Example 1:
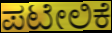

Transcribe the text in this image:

ಪಟೇಲಿಕೆ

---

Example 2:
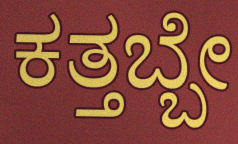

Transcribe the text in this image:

ಕತ್ತಬ್ಬೇ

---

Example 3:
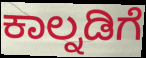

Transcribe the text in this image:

ಕಾಲ್ನಡಿಗೆ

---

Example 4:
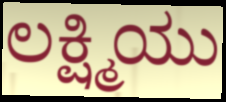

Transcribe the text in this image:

ಲಕ್ಷ್ಮಿಯು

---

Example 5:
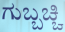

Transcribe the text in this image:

ಗುಬ್ಬಚ್ಚಿ